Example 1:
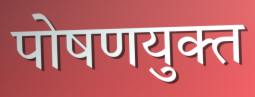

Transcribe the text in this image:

पोषणयुक्‍त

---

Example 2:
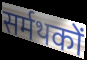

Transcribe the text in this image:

सर्मथकों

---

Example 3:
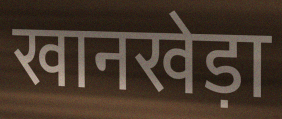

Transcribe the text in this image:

खानखेड़ा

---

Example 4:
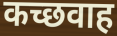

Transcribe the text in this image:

कच्छवाह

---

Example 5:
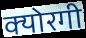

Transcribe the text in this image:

क्योरगी